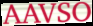
AAVSO